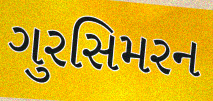
ગુરસિમરન